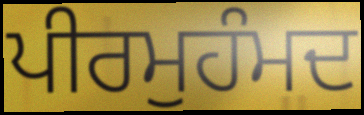
ਪੀਰਮੁਹੰਮਦ